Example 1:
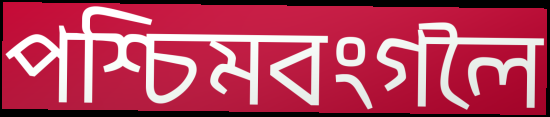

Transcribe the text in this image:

পশ্চিমবংগলৈ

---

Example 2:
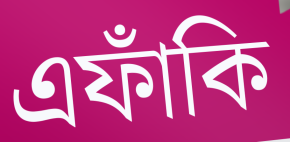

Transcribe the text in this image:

এফাঁকি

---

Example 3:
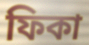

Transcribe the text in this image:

ফিকা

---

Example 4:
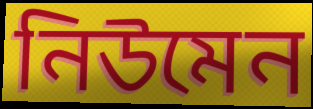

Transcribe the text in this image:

নিউমেন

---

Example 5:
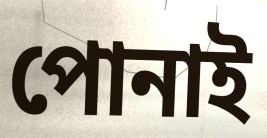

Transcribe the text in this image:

পোনাই